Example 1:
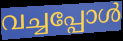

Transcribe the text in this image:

വച്ചപ്പോൾ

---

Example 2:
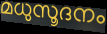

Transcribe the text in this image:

മധുസൂദനം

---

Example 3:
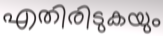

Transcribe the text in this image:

എതിരിടുകയും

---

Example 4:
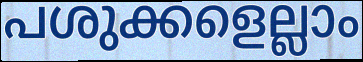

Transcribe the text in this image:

പശുക്കളെല്ലാം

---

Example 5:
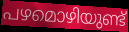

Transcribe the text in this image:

പഴമൊഴിയുണ്ട്